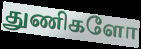
துணிகளோ